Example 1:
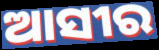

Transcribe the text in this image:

ଆସୀର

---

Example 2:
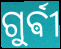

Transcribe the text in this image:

ଗୁର୍ଵୀ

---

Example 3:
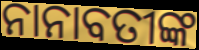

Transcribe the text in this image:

ନାନାବତୀଙ୍କ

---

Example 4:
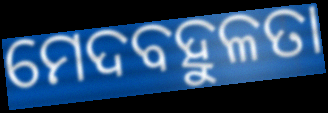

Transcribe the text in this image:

ମେଦବହୁଳତା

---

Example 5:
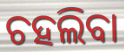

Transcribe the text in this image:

ଚହଲିବା